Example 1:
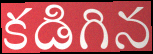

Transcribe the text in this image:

కడిగిన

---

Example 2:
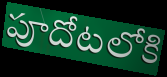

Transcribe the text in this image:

పూదోటలోకి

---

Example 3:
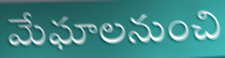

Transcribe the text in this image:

మేఘాలనుంచి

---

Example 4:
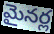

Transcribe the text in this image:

మైనర్ల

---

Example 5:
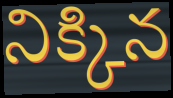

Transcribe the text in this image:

నిక్కిన